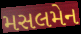
મસલમેન